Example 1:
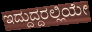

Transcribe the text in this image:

ಇದ್ದುದ್ದರಲ್ಲಿಯೇ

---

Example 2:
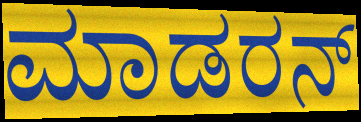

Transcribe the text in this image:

ಮಾಡರನ್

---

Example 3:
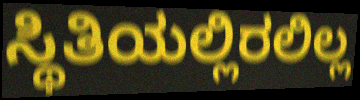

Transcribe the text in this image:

ಸ್ಥಿತಿಯಲ್ಲಿರಲಿಲ್ಲ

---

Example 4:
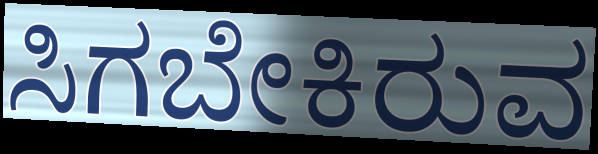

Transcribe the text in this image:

ಸಿಗಬೇಕಿರುವ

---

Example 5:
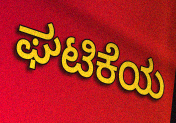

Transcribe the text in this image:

ಘಟಿಕೆಯ